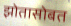
झोतासोबत